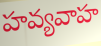
హవ్యవాహ